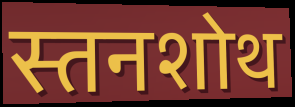
स्तनशोथ